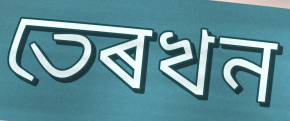
তেৰখন